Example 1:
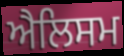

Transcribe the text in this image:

ਐਲਿਸਮ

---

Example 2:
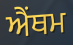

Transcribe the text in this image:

ਐਂਥਮ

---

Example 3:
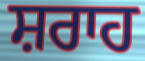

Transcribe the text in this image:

ਸ਼ਰਾਹ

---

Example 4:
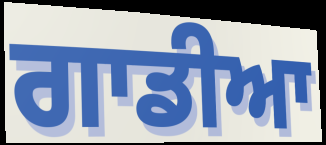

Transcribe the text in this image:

ਗਾਡੀਆ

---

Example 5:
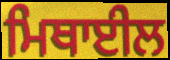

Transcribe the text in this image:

ਮਿਥਾਈਲ